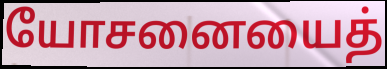
யோசனையைத்